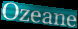
Ozeane